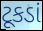
ટૂકડાં